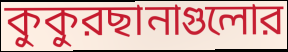
কুকুরছানাগুলোর